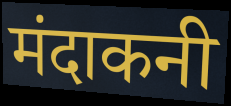
मंदाकनी